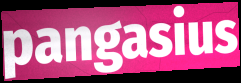
pangasius